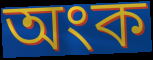
অংক